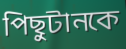
পিছুটানকে